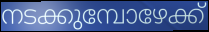
നടക്കുമ്പോഴേക്ക്